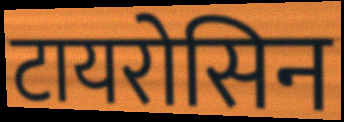
टायरोसिन